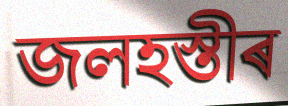
জলহস্তীৰ